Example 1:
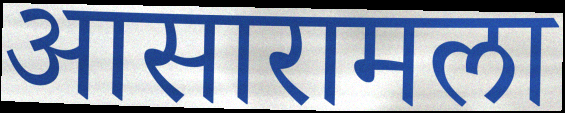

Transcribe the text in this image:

आसारामला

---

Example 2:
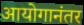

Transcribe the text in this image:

आयोगानंतर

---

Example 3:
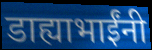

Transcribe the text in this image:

डाह्याभाईंनी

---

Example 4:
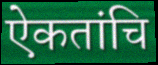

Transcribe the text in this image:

ऐकतांचि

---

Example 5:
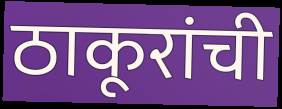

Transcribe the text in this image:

ठाकूरांची